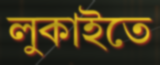
লুকাইতে